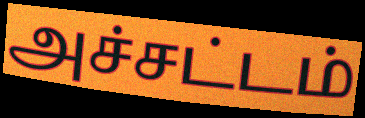
அச்சட்டம்